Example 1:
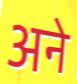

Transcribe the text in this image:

अने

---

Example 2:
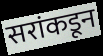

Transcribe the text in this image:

सरांकडून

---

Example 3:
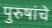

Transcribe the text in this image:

पुरुषांचे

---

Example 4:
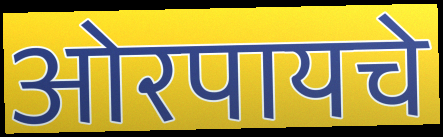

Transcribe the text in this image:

ओरपायचे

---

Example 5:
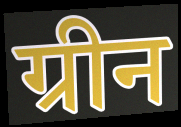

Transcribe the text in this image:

ग्रीन